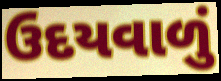
ઉદયવાળું